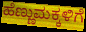
ಹೆಣ್ಣುಮಕ್ಕಳಿಗೆ